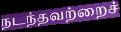
நடந்தவற்றைச்